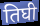
तिघी